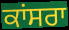
ਕਾਂਸਰਾ